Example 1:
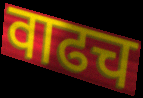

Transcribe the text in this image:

वाढच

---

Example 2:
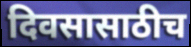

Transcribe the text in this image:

दिवसासाठीच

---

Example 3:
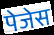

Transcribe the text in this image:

पेजेस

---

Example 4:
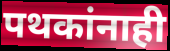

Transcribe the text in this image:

पथकांनाही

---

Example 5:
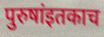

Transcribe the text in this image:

पुरुषांइतकाच